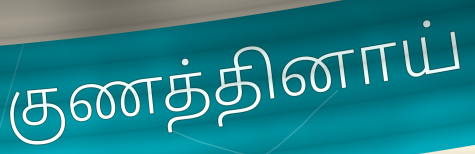
குணத்தினாய்